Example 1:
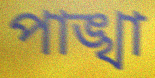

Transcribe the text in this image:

পাঙ্খা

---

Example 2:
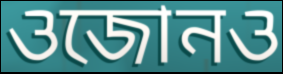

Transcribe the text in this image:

ওজোনও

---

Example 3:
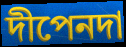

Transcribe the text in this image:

দীপেনদা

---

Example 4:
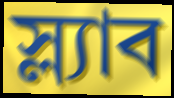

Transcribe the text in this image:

স্ল্যাব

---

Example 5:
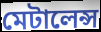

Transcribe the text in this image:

মেটালেন্স